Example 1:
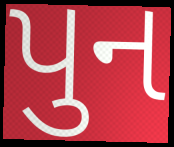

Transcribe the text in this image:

પુન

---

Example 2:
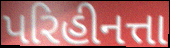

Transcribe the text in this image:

પરિહીનત્તા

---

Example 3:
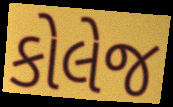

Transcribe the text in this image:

કોલેજ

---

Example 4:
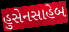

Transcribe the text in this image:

હુસેનસાહેબ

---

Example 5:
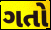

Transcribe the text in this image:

ગતો